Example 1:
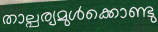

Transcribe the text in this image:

താല്പര്യമുൾക്കൊണ്ടു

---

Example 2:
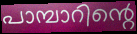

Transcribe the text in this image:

പാമ്പാറിന്റെ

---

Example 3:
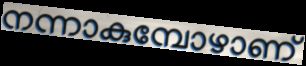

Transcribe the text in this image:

നന്നാകുമ്പോഴാണ്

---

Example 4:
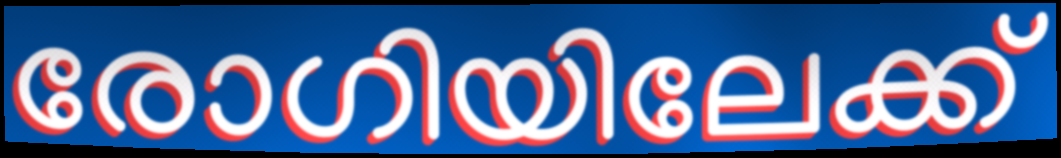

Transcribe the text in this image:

രോഗിയിലേക്ക്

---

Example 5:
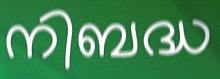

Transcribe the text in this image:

നിബദ്ധ